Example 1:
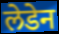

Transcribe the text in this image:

लेडेन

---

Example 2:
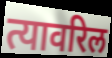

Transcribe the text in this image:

त्यावरिल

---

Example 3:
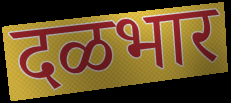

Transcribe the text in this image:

दळभार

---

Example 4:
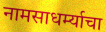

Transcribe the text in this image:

नामसाधर्म्याचा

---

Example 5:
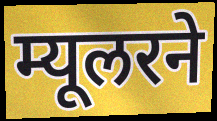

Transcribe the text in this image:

म्यूलरने